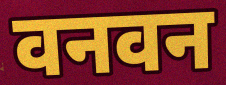
वनवन